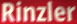
Rinzler